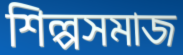
শিল্পসমাজ